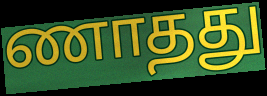
ணாதது